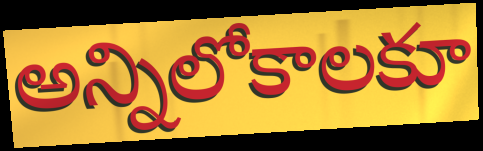
అన్నిలోకాలకూ